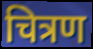
चित्रण